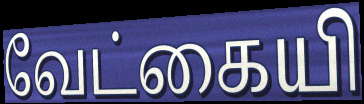
வேட்கையி